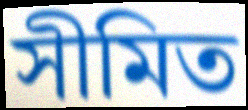
সীমিত